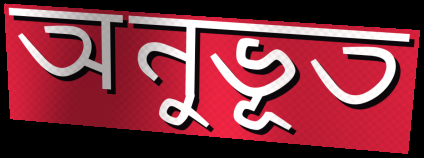
অনুভূত